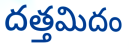
దత్తమిదం